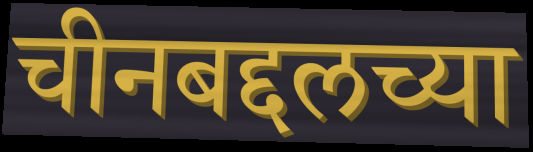
चीनबद्दलच्या